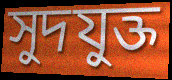
সুদযুক্ত